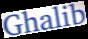
Ghalib